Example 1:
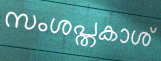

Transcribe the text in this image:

സംശപ്തകാശ്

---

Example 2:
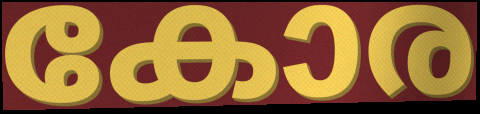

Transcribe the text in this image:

കോര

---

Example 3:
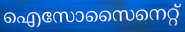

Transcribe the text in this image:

ഐസോസൈനെറ്റ്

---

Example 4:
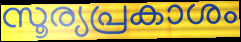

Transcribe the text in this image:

സൂര്യപ്രകാശം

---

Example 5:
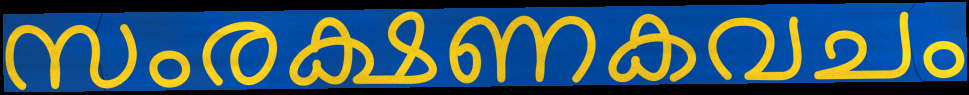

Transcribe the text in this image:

സംരക്ഷണകവചം